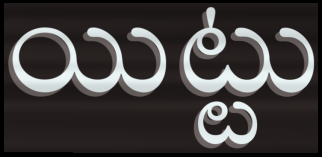
యిట్టు